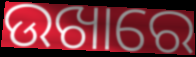
ଉଖାରେ